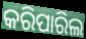
କରିପାରିଲ